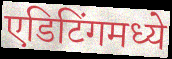
एडिटिंगमध्ये